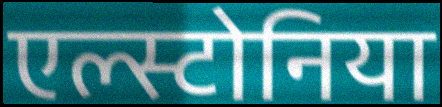
एल्स्टोनिया